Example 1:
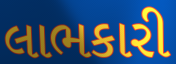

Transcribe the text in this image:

લાભકારી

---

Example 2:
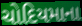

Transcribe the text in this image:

ચોદિયમાના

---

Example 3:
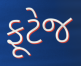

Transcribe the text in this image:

ફૂટેજ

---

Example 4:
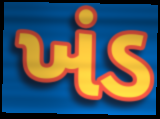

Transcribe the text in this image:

ખંડ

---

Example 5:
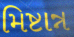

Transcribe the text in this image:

મિષ્ટાન્ન